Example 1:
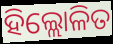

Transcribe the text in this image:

ହିଲ୍ଲୋଳିତ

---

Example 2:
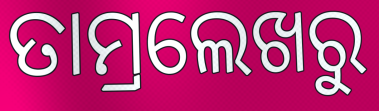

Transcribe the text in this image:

ତାମ୍ରଲେଖରୁ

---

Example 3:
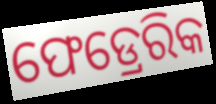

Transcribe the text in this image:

ଫେଡ୍ରେରିକ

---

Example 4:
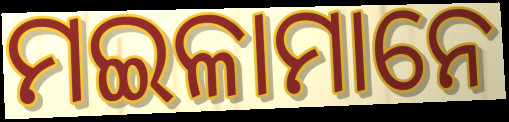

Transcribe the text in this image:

ମଇଳାମାନେ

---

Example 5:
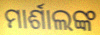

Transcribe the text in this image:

ମାର୍ଶାଲଙ୍କ